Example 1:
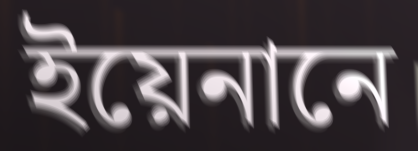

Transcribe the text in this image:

ইয়েনানে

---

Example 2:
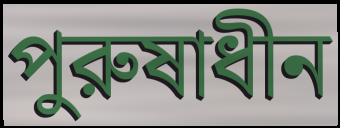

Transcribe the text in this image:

পুরুষাধীন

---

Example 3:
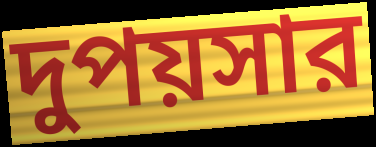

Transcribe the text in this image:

দুপয়সার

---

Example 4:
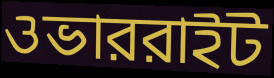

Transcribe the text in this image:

ওভাররাইট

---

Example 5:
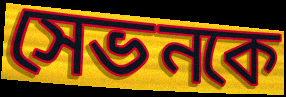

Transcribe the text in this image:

সেভনকে